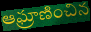
ఆఘ్రాణించిన